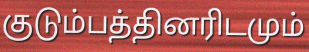
குடும்பத்தினரிடமும்